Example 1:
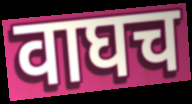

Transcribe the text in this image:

वाघच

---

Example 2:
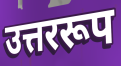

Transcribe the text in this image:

उत्तररूप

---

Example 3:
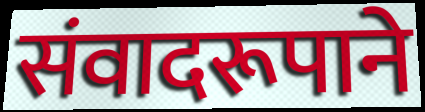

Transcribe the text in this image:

संवादरूपाने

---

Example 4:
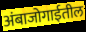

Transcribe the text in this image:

अंबाजोगाईतील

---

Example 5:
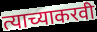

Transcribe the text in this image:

त्याच्याकरवी